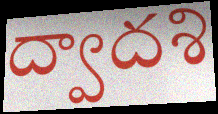
ద్వాదశి